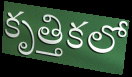
కృత్తికలో